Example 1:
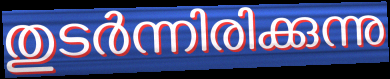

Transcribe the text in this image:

തുടർന്നിരിക്കുന്നു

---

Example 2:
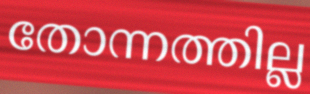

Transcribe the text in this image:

തോന്നത്തില്ല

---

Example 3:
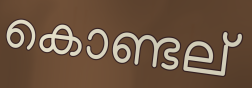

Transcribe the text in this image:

കൊണ്ടല്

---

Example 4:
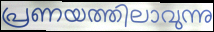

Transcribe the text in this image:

പ്രണയത്തിലാവുന്നു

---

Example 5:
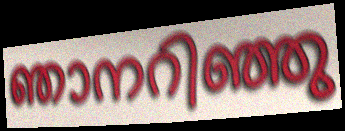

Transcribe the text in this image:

ഞാനറിഞ്ഞു